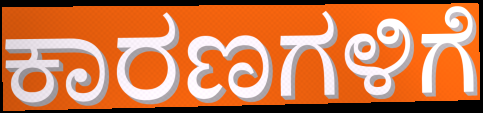
ಕಾರಣಗಳಿಗೆ